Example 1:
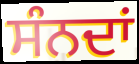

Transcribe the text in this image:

ਸੰਨਦਾਂ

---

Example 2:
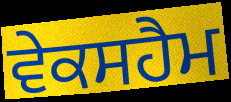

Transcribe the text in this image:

ਵੇਕਸਹੈਮ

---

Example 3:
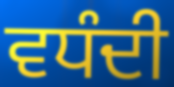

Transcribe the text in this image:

ਵਧੰਦੀ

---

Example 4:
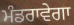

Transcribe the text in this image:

ਮੰਡਰਾਵੇਗਾ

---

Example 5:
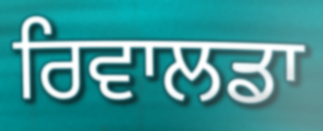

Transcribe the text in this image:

ਰਿਵਾਲਡਾ